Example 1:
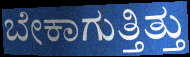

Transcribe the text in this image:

ಬೇಕಾಗುತ್ತಿತ್ತು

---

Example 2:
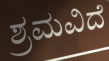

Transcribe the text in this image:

ಶ್ರಮವಿದೆ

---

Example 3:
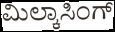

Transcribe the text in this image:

ಮಿಲ್ಕಾಸಿಂಗ್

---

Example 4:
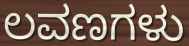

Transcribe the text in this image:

ಲವಣಗಳು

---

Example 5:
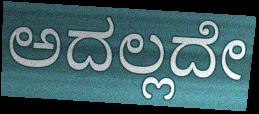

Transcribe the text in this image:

ಅದಲ್ಲದೇ